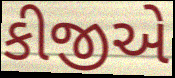
કીજીએ